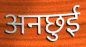
अनछुई